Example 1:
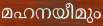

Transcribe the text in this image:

മഹനയീമും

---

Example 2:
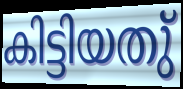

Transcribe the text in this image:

കിട്ടിയതു്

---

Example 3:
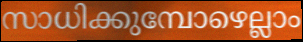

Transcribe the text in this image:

സാധിക്കുമ്പോഴെല്ലാം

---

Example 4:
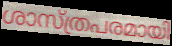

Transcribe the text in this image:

ശാസ്ത്രപരമായി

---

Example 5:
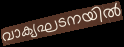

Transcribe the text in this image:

വാക്യഘടനയിൽ